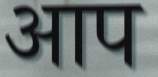
आप